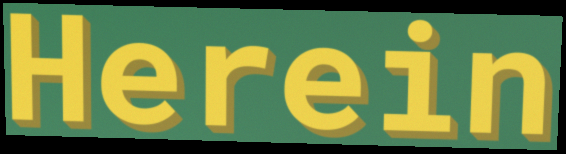
Herein